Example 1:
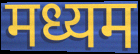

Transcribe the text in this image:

मध्यम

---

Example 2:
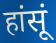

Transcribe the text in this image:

हांसूं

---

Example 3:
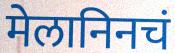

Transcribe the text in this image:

मेलानिनचं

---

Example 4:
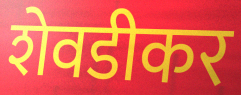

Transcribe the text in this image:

शेवडीकर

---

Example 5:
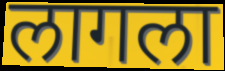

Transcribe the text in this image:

लागला